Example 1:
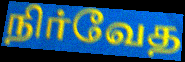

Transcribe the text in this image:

நிர்வேத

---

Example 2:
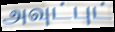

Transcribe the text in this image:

அவுட்புட்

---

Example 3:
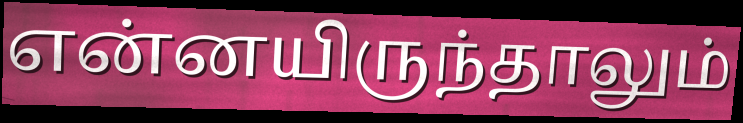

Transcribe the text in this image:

என்னயிருந்தாலும்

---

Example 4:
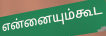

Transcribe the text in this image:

என்னையும்கூட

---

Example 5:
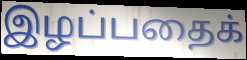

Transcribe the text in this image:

இழப்பதைக்